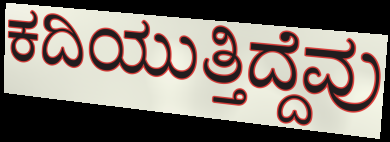
ಕದಿಯುತ್ತಿದ್ದೆವು